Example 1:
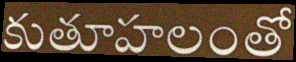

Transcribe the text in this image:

కుతూహలంతో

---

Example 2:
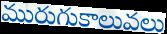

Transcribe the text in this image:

మురుగుకాలువలు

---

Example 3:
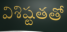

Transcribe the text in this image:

విశిష్టతతో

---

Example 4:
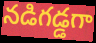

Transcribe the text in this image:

నడిగడ్డగా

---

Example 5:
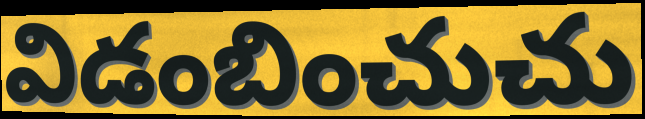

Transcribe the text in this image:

విడంబించుచు